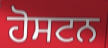
ਹੋਸਟਨ